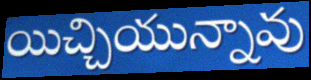
యిచ్చియున్నావు